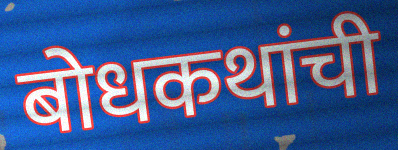
बोधकथांची